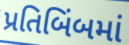
પ્રતિબિંબમાં